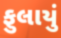
ફુલાયું